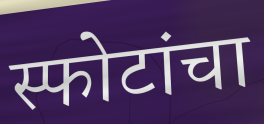
स्फोटांचा